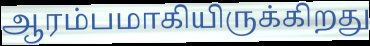
ஆரம்பமாகியிருக்கிறது